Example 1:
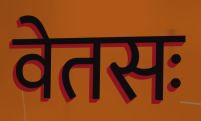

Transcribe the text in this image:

वेतसः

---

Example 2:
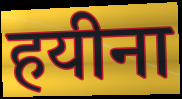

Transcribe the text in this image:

हयीना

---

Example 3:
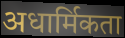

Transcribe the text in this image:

अधार्मिकता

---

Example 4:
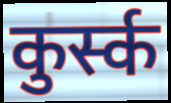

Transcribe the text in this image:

कुर्स्क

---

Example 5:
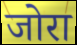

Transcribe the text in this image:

जोरा